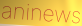
aninews